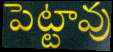
పెట్టావు